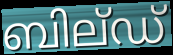
ബില്ഡ്